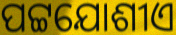
ପଟ୍ଟଯୋଶୀଏ